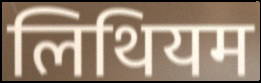
लिथियम